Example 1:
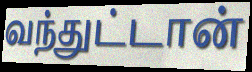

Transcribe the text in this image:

வந்துட்டான்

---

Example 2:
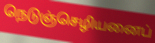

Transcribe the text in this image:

நெடுஞ்செழியனைப்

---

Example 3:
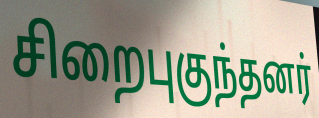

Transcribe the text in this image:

சிறைபுகுந்தனர்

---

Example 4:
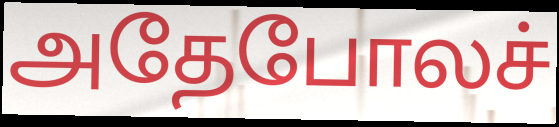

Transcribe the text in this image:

அதேபோலச்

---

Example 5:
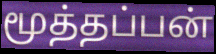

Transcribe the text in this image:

மூத்தப்பன்